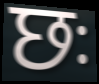
छः